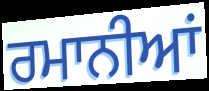
ਰਮਾਨੀਆਂ